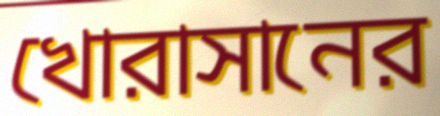
খোরাসানের